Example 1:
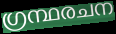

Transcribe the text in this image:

ഗ്രന്ഥരചന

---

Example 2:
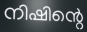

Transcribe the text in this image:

നിഷിന്റെ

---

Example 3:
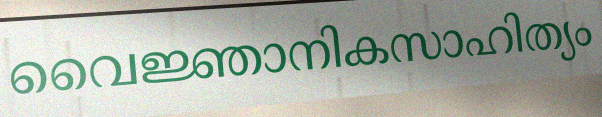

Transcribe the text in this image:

വൈജ്ഞാനികസാഹിത്യം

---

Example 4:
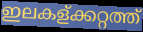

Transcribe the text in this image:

ഇലകള്ക്കറ്റത്ത്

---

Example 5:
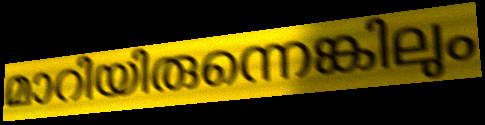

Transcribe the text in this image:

മാറിയിരുന്നെങ്കിലും